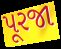
પૂરજા